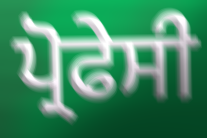
ਪ੍ਰੋਫੇਸੀ